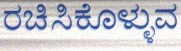
ರಚಿಸಿಕೊಳ್ಳುವ